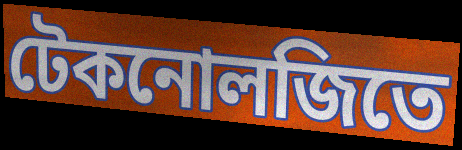
টেকনোলজিতে